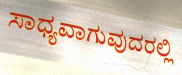
ಸಾಧ್ಯವಾಗುವುದರಲ್ಲಿ